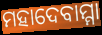
ମହାଦେବାମ୍ମା